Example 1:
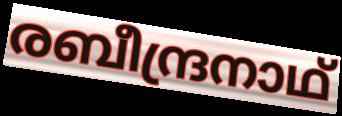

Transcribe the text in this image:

രബീന്ദ്രനാഥ്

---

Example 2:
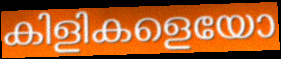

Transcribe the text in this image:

കിളികളെയോ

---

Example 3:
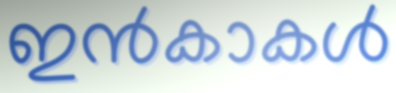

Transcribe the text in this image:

ഇൻകാകൾ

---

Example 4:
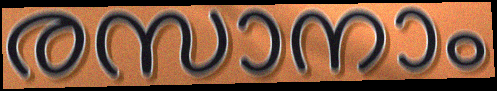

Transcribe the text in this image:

രസാനാം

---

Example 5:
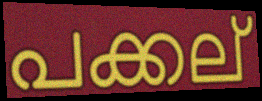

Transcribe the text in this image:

പക്കല്